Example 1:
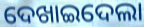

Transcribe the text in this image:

ଦେଖାଇଦେଲା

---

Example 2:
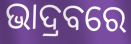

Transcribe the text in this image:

ଭାଦ୍ରବରେ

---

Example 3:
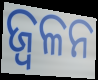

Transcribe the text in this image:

ଜ୍ୱଳନ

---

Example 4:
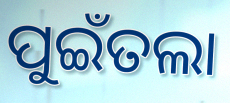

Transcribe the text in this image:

ପୁଇଁତଲା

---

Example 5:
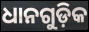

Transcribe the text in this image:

ଧାନଗୁଡ଼ିକ